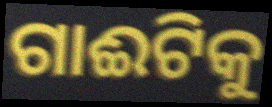
ଗାଈଟିକୁ